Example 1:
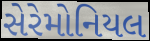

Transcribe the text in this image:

સેરેમોનિયલ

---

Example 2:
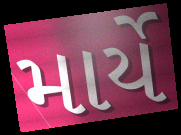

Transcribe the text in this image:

માર્યે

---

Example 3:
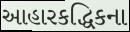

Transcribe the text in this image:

આહારકદ્ધિકના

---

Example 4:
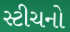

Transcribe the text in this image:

સ્ટીચનો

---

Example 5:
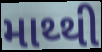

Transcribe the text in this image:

માથ્થી